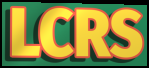
LCRS